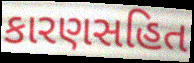
કારણસહિત